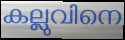
കല്ലുവിനെ